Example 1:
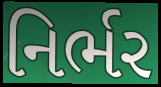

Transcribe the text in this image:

નિર્ભર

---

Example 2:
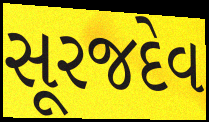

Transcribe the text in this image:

સૂરજદેવ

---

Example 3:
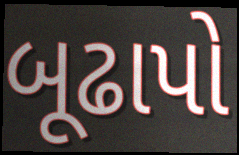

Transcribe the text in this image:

બૂઢાપો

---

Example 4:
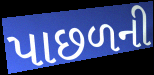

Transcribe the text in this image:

પાછળની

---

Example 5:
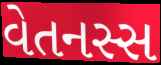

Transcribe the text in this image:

વેતનસ્સ